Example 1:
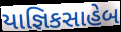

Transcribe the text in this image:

યાજ્ઞિકસાહેબ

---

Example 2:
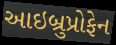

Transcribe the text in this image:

આઇબ્રુપ્રોફેન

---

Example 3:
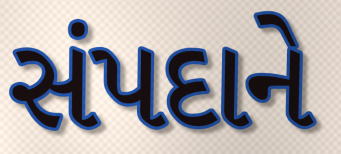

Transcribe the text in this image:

સંપદાને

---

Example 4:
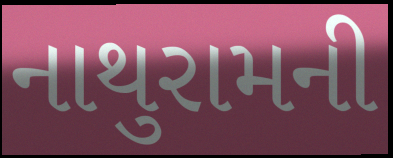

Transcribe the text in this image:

નાથુરામની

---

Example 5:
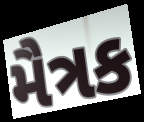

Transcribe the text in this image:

મૈત્રક